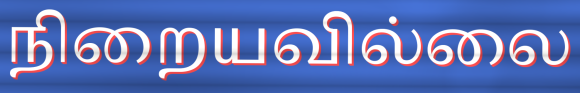
நிறையவில்லை